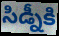
సిడ్నీకి